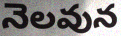
నెలవున